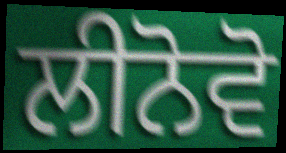
ਲੀਨੋਵੋ